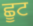
ਛੂਟ